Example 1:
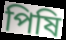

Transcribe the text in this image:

পিষি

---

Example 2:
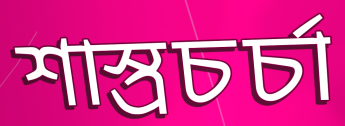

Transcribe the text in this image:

শাস্ত্রচর্চা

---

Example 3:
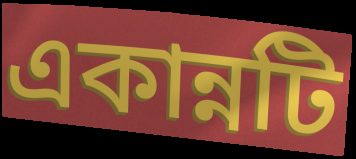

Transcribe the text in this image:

একান্নটি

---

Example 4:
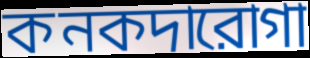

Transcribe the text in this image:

কনকদারোগা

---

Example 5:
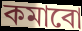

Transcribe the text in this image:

কমাবো